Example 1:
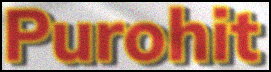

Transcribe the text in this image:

Purohit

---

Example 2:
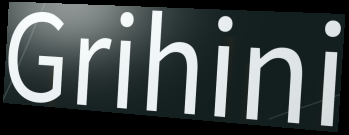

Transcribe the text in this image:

Grihini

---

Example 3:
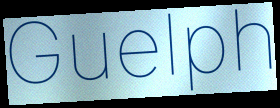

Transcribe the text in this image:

Guelph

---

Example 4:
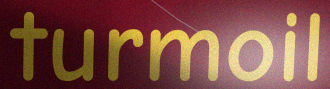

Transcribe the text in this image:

turmoil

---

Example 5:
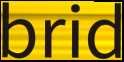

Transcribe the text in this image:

brid